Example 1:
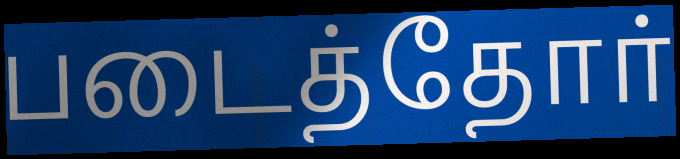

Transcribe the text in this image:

படைத்தோர்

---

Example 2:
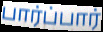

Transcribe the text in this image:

பார்ப்பார்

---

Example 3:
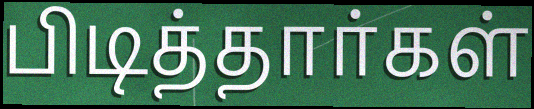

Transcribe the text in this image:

பிடித்தார்கள்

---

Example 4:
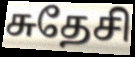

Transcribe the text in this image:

சுதேசி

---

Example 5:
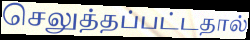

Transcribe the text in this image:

செலுத்தப்பட்டதால்